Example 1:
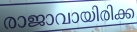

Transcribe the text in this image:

രാജാവായിരിക്ക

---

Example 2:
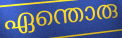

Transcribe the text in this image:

ഏന്തൊരു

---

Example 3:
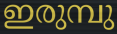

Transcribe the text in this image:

ഇരുമ്പു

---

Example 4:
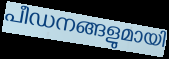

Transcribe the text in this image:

പീഡനങ്ങളുമായി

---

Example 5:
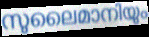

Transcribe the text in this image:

സുലൈമാനിയും